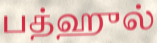
பத்ஹுல்